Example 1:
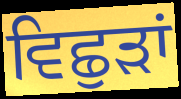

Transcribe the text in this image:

ਵਿਛੁੜਾਂ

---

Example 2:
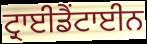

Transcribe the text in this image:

ਟ੍ਰਾਈਡੈਂਟਾਈਨ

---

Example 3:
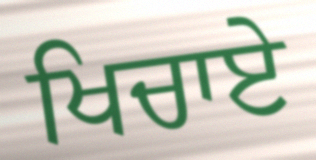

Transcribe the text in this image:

ਖਿਚਾਏ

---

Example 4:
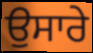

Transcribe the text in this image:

ਉਸਾਰੇ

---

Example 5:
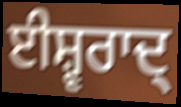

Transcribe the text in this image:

ਈਸ਼੍ਵਰਾਦ੍